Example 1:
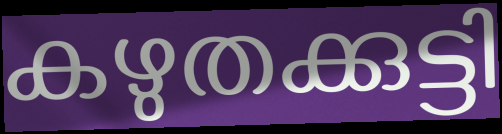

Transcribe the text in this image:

കഴുതക്കുട്ടി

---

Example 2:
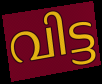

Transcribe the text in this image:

വിട്ട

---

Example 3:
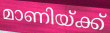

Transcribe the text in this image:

മാണിയ്ക്ക്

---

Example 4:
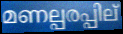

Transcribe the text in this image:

മണല്പരപ്പില്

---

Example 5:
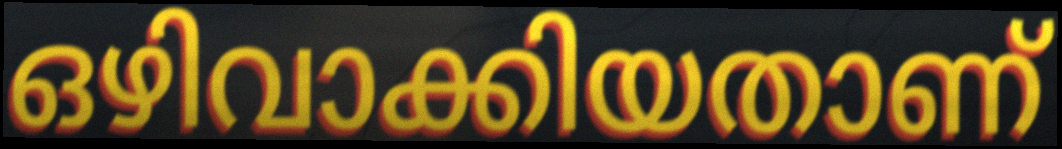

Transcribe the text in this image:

ഒഴിവാക്കിയതാണ്